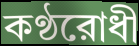
কণ্ঠরোধী